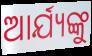
ଆର୍ଯ୍ୟଙ୍କୁ